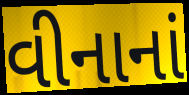
વીનાનાં